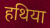
हथिया